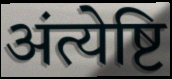
अंत्येष्टि